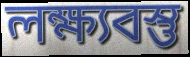
লক্ষ্যবস্তু